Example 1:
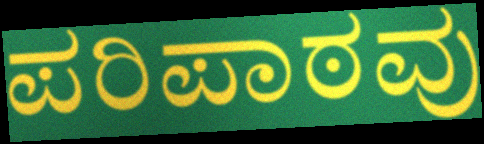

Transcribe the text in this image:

ಪರಿಪಾಠವು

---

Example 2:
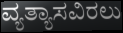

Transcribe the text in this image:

ವ್ಯತ್ಯಾಸವಿರಲು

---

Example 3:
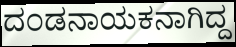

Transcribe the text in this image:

ದಂಡನಾಯಕನಾಗಿದ್ದ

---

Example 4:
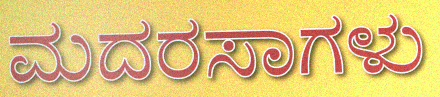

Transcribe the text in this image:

ಮದರಸಾಗಳು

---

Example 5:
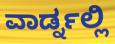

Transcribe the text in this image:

ವಾರ್ಡ್ನಲ್ಲಿ